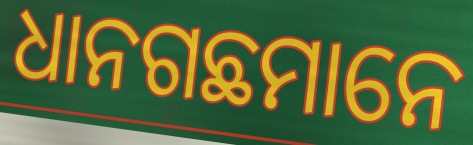
ଧାନଗଛମାନେ